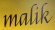
malik